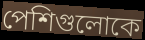
পেশিগুলোকে